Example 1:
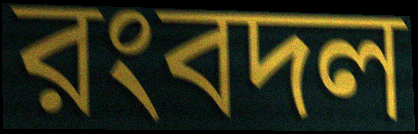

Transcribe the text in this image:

রংবদল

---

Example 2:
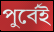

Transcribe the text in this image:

পুর্বেই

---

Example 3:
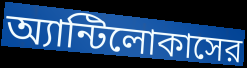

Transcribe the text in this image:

অ্যান্টিলোকাসের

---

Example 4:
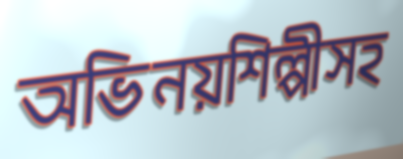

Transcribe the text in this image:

অভিনয়শিল্পীসহ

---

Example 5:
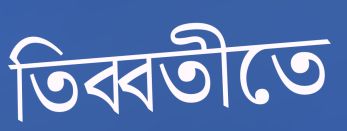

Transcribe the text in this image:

তিব্বতীতে